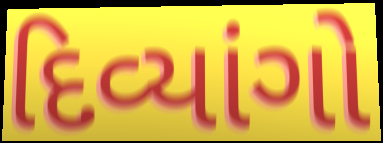
દિવ્યાંગો